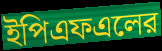
ইপিএফএলের